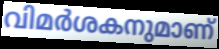
വിമർശകനുമാണ്